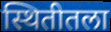
स्थितीतला